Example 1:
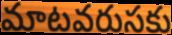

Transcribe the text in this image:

మాటవరుసకు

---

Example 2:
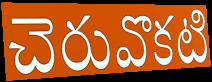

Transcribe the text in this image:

చెరువొకటి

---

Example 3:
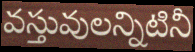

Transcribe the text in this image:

వస్తువులన్నిటినీ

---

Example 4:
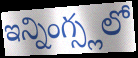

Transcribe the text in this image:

ఇన్నింగ్స్లలో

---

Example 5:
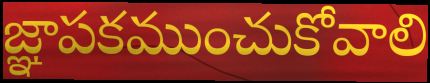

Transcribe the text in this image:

జ్ఞాపకముంచుకోవాలి